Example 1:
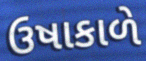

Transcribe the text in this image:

ઉષાકાળે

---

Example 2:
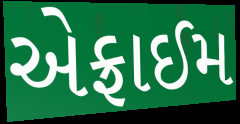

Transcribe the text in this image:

એફ્રાઈમ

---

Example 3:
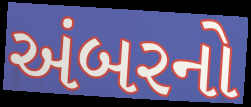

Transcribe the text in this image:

અંબરનો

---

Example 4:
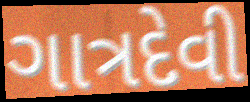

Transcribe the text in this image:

ગાત્રદેવી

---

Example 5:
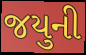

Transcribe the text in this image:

જયુની